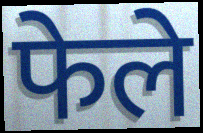
फेले